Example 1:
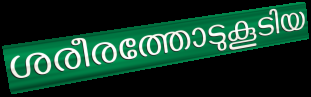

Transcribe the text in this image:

ശരീരത്തോടുകൂടിയ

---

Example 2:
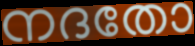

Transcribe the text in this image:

നദതോ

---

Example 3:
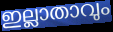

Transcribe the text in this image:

ഇല്ലാതാവും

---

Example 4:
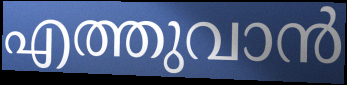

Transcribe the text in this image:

എത്തുവാൻ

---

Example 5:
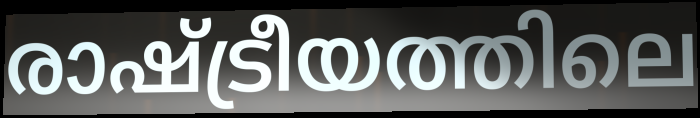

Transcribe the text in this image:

രാഷ്ട്രീയത്തിലെ